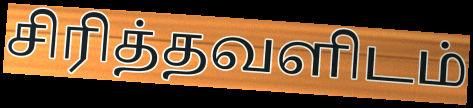
சிரித்தவளிடம்